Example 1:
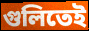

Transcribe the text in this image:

গুলিতেই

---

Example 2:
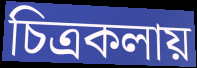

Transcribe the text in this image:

চিত্রকলায়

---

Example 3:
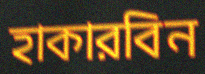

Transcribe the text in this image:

হাকারবিন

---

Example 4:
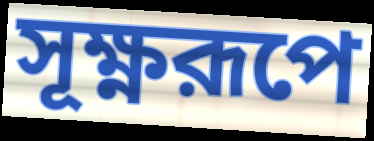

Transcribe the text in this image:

সূক্ষ্ণরূপে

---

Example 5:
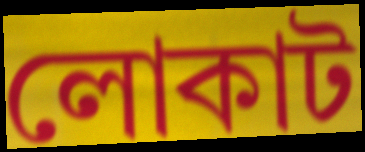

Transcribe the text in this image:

লোকাট